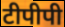
टीपीपी